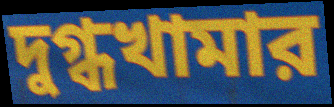
দুগ্ধখামার